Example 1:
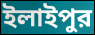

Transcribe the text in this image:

ইলাইপুর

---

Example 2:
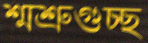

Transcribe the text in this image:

শ্মশ্রুগুচ্ছ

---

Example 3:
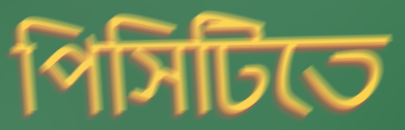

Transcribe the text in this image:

পিসিটিতে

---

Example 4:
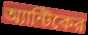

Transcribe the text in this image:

অ্যান্টিকের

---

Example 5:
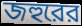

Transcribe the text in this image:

জহুরের